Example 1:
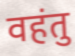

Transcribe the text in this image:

वहंतु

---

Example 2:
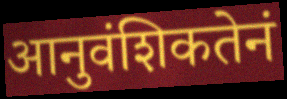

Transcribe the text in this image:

आनुवंशिकतेनं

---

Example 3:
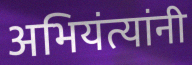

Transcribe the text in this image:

अभियंत्यांनी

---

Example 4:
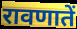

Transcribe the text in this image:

रावणातें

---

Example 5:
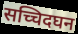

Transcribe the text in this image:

सच्चिदघन